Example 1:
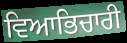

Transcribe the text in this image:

ਵਿਆਭਿਚਾਰੀ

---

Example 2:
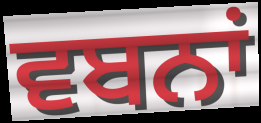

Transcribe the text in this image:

ਵਬਨਾਂ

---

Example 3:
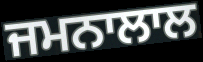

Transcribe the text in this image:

ਜਮਨਾਲਾਲ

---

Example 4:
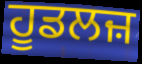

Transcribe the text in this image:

ਹੂਡਲਜ਼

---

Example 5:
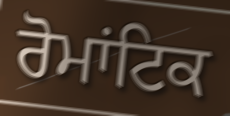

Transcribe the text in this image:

ਰੋਮਾਂਟਿਕ